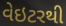
વેઇટરથી